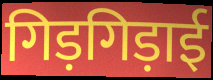
गिड़गिड़ाई